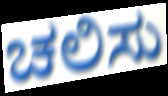
ಚಲಿಸು